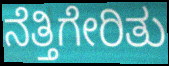
ನೆತ್ತಿಗೇರಿತು